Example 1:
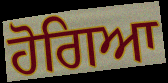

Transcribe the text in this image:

ਹੋਗਿਆ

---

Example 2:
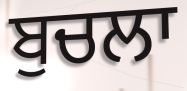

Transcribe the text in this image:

ਬੁਚਲਾ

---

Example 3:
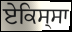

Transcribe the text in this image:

ਏਕਿਸ੍ਸਾ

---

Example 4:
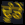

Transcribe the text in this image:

ਢੂੰਡੇਂ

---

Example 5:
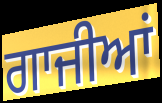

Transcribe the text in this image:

ਗਾਜੀਆਂ